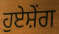
ਹੁਏਸ਼ੇਂਗ